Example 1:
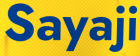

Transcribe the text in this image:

Sayaji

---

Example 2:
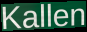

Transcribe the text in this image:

Kallen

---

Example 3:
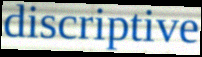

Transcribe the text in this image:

discriptive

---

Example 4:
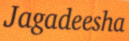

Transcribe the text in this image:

Jagadeesha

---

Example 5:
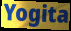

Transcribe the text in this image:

Yogita